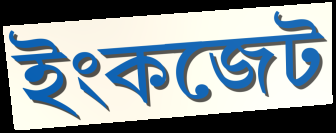
ইংকজেট